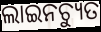
ଲାଇନଚ୍ୟୁତ